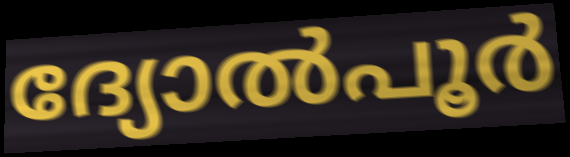
ദ്യോൽപൂർ